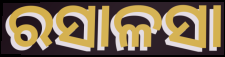
ରସାଳସା